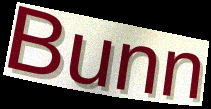
Bunn